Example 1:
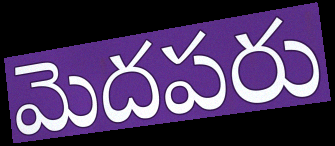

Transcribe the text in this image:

మెదపరు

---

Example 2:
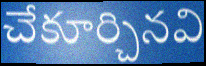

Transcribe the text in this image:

చేకూర్చినవి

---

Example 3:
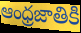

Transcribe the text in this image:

ఆంధ్రజాతికి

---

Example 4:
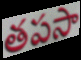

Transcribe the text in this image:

తపసా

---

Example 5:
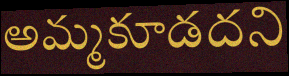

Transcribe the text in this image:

అమ్మకూడదని